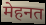
मेहनत